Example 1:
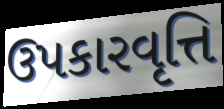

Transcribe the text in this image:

ઉપકારવૃત્તિ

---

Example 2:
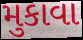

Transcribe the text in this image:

મુકાવા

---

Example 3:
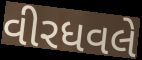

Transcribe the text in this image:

વીરધવલે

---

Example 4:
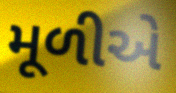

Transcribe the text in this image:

મૂળીએ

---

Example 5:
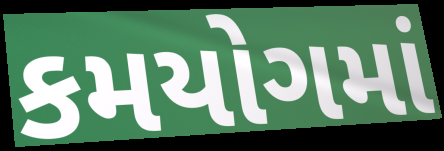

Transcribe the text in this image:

કમયોગમાં